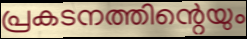
പ്രകടനത്തിന്റെയും